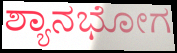
ಶ್ಯಾನಭೋಗ